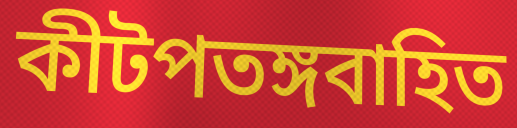
কীটপতঙ্গবাহিত